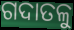
ଗଦାତଳୁ